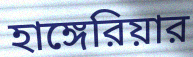
হাঙ্গেরিয়ার